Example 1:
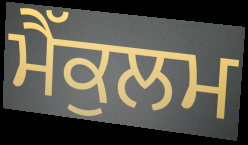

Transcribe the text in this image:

ਮੈੱਕੁਲਮ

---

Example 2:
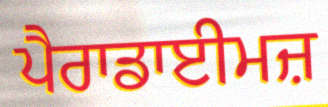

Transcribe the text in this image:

ਪੈਰਾਡਾਈਮਜ਼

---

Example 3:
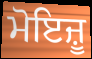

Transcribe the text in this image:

ਮੋਇਜ਼ੂ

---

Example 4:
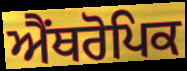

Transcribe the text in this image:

ਐਂਥਰੋਪਿਕ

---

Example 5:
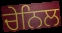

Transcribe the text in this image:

ਚੇਨਿਲ